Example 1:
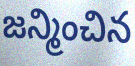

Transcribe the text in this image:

జన్మించిన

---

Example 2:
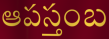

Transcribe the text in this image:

ఆపస్తంబ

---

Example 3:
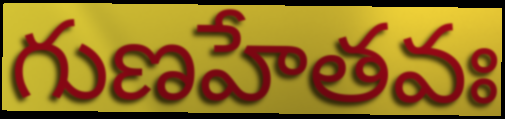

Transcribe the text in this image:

గుణహేతవః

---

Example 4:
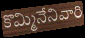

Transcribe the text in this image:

కొమ్మినేనివారి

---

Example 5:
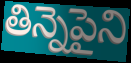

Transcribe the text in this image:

తిన్నెపైని